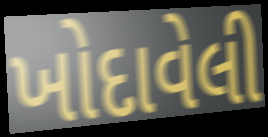
ખોદાવેલી